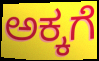
ಅಕ್ಕಗೆ